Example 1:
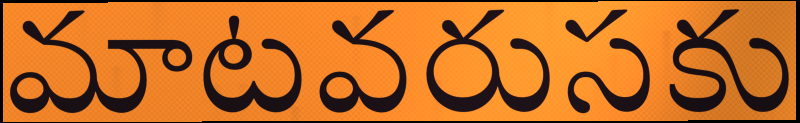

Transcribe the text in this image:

మాటవరుసకు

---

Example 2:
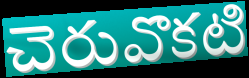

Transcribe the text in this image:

చెరువొకటి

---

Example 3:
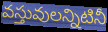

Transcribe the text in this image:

వస్తువులన్నిటినీ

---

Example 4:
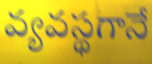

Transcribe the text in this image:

వ్యవస్థగానే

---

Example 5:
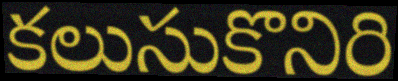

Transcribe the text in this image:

కలుసుకొనిరి